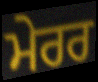
ਮੇਰਰ